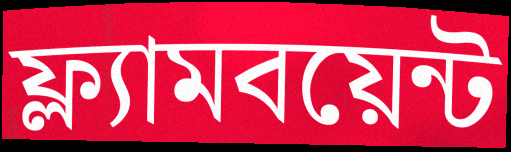
ফ্ল্যামবয়েন্ট